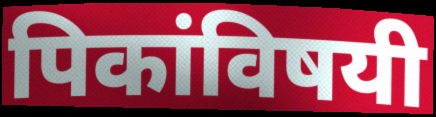
पिकांविषयी